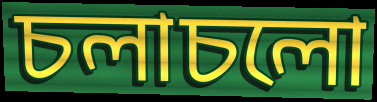
চলাচলো